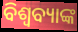
ବିଶ୍ୱବ୍ୟାଙ୍କ